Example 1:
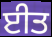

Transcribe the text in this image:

ਈਤ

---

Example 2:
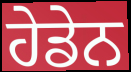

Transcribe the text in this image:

ਹੇਡੇਨ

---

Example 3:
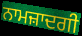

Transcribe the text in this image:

ਨਾਮਜ਼ਾਦਗੀ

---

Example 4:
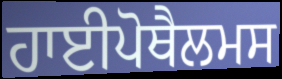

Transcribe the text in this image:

ਹਾਈਪੋਥੈਲਮਸ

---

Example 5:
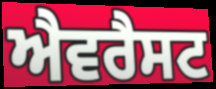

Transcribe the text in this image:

ਐਵਰੈਸਟ